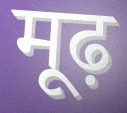
मूढ़